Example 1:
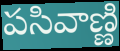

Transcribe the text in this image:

పసివాణ్ణి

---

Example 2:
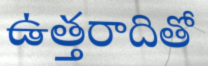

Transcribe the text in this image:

ఉత్తరాదితో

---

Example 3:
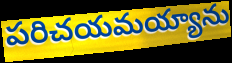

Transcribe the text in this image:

పరిచయమయ్యాను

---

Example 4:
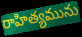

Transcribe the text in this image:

రాహిత్యమును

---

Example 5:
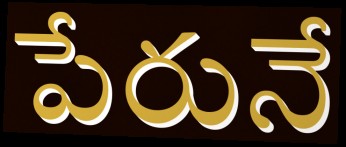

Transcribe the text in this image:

పేరునే